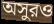
অসুরও